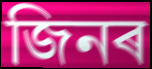
জিনৰ